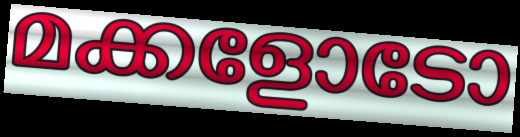
മക്കളോടോ